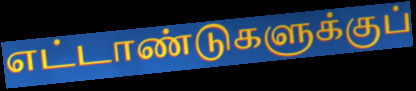
எட்டாண்டுகளுக்குப்